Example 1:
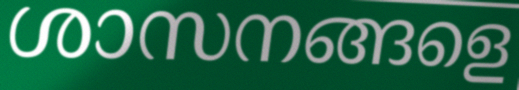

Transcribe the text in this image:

ശാസനങ്ങളെ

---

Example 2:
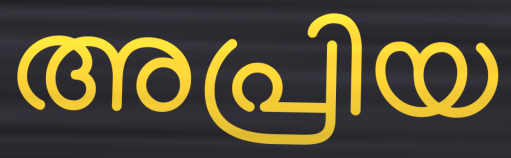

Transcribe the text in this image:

അപ്രിയ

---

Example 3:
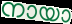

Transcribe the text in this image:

നായാ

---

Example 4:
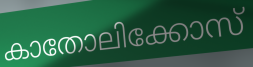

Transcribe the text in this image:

കാതോലിക്കോസ്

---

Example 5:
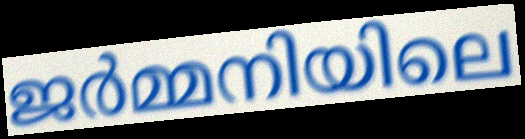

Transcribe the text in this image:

ജർമ്മനിയിലെ